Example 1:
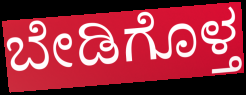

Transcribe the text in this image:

ಬೇಡಿಗೊಳ್ತ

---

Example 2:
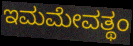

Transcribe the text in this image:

ಇಮಮೇವತ್ಥಂ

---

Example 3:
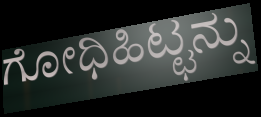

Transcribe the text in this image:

ಗೋಧಿಹಿಟ್ಟನ್ನು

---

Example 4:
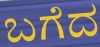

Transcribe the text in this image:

ಬಗೆದ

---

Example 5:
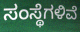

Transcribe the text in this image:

ಸಂಸ್ಥೆಗಳಿವೆ